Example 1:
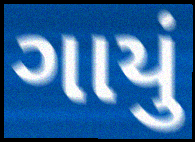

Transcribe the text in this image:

ગાયું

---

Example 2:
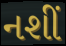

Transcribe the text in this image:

નશીં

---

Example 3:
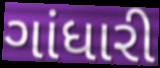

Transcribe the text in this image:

ગાંધારી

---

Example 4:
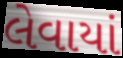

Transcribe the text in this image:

લેવાયાં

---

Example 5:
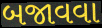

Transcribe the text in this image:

બજાવવા